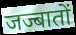
जज्बातों